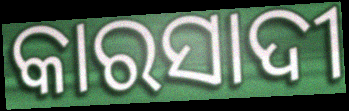
କାରସାଦୀ